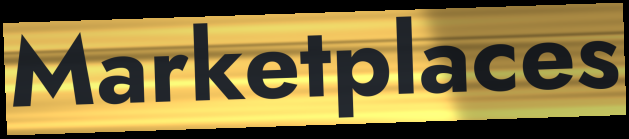
Marketplaces